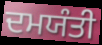
ਦਮਯੰਤੀ